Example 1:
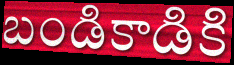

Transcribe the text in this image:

బండికాడికి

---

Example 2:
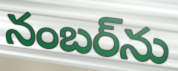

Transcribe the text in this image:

నంబర్‌ను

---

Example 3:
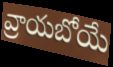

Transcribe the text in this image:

వ్రాయబోయే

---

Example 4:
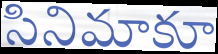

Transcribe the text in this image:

సినిమాకూ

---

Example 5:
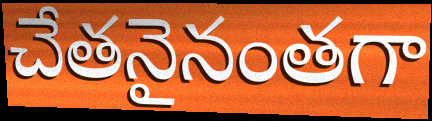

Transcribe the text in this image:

చేతనైనంతగా